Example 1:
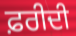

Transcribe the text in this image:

ਫ਼ਰੀਦੀ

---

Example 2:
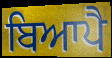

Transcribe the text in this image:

ਬਿਆਪੈ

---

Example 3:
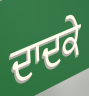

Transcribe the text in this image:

ਦਾਦਕੇ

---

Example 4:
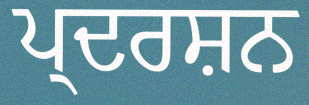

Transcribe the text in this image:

ਪ੍ਦਰਸ਼ਨ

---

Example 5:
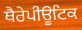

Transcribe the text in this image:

ਥੈਰੇਪੀਊਟਿਕ